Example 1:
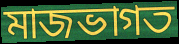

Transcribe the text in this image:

মাজভাগত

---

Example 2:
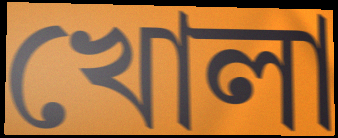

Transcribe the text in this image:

খোলা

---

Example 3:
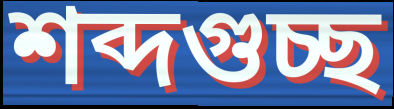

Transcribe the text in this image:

শব্দগুচ্ছ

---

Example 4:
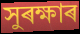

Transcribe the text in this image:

সুৰক্ষাৰ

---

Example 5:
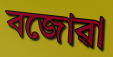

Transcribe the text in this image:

বজোৱা